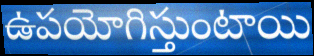
ఉపయోగిస్తుంటాయి